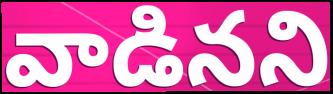
వాడినని